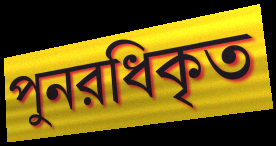
পুনরধিকৃত